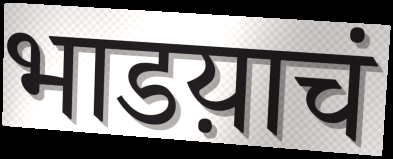
भाडय़ाचं